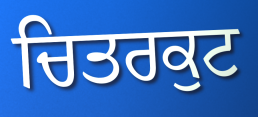
ਚਿਤਰਕੁਟ